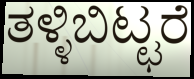
ತಳ್ಳಿಬಿಟ್ಟರೆ